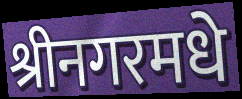
श्रीनगरमधे